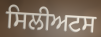
ਸਿਲੀਅਟਸ